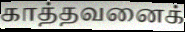
காத்தவனைக்